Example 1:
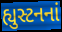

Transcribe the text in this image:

હ્યુસ્ટનનાં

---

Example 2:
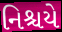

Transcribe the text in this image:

નિશ્ચયે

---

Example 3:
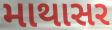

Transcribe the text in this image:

માથાસર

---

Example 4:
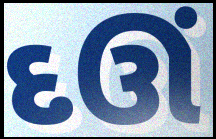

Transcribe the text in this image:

દઊં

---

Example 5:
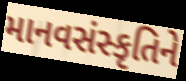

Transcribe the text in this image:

માનવસંસ્કૃતિને